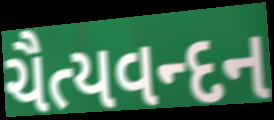
ચૈત્યવન્દન